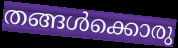
തങ്ങൾക്കൊരു